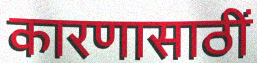
कारणासाठीं